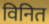
विनित